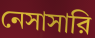
নেসাসারি